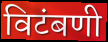
विटंबणी